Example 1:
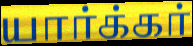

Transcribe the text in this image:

யார்க்கர்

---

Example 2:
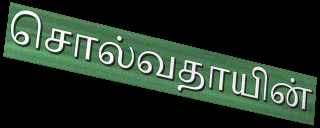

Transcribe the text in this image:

சொல்வதாயின்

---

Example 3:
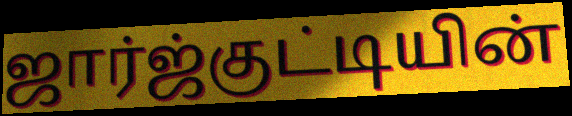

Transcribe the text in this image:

ஜார்ஜ்குட்டியின்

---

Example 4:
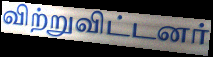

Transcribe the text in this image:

விற்றுவிட்டனர்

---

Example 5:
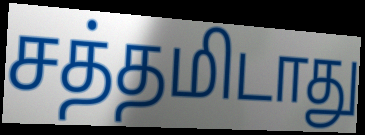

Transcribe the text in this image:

சத்தமிடாது